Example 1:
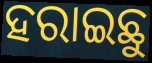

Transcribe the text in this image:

ହରାଇଛୁ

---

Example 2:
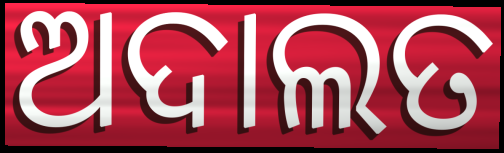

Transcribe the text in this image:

ଅଦାଲତ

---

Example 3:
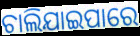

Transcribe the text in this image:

ଚାଲିଯାଇପାରେ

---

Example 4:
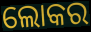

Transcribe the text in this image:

ଲୋକର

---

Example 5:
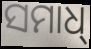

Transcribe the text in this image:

ସମାଧ୍